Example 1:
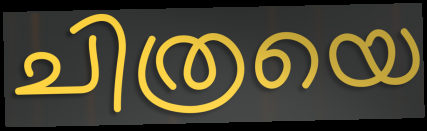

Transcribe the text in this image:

ചിത്രയെ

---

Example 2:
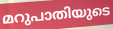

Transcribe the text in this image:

മറുപാതിയുടെ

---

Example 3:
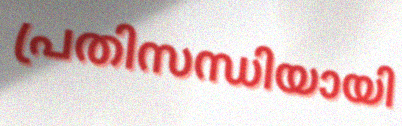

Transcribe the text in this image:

പ്രതിസന്ധിയായി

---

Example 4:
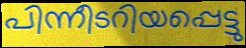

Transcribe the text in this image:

പിന്നീടറിയപ്പെട്ടു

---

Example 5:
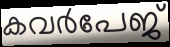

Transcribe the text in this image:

കവർപേജ്